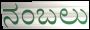
ನಂಬಲು